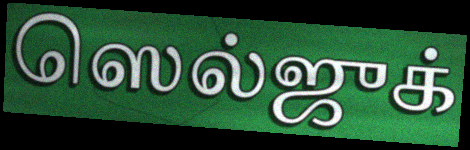
ஸெல்ஜுக்